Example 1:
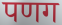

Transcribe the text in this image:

पणग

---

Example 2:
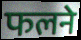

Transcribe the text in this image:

फलने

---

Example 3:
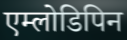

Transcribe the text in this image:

एम्लोडिपिन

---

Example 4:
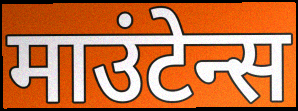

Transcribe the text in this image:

माउंटेन्स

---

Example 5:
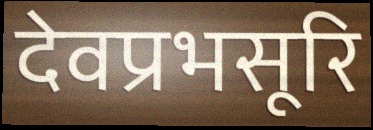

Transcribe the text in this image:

देवप्रभसूरि